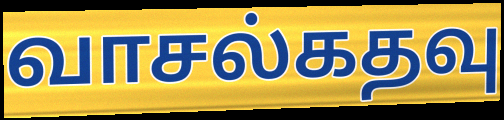
வாசல்கதவு